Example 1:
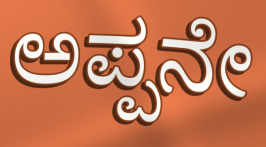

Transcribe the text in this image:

ಅಪ್ಪನೇ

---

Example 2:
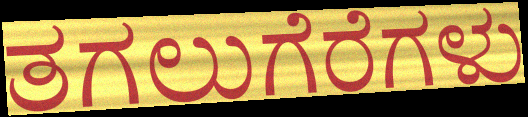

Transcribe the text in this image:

ತಗಲುಗೆರೆಗಳು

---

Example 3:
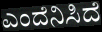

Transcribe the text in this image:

ಎಂದೆನಿಸಿದೆ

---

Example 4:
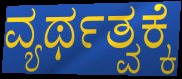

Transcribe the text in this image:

ವ್ಯರ್ಥತ್ವಕ್ಕೆ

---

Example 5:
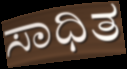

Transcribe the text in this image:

ಸಾಧಿತ